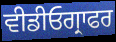
ਵੀਡੀਓਗ੍ਰਾਫਰ